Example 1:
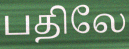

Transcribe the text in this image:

பதிலே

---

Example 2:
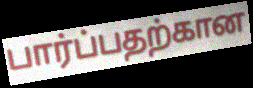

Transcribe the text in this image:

பார்ப்பதற்கான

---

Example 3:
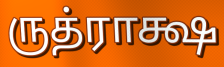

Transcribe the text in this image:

ருத்ராக்ஷ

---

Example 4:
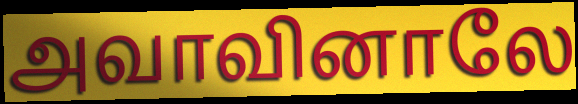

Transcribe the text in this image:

அவாவினாலே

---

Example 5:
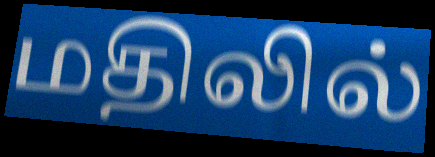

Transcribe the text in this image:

மதிலில்